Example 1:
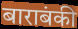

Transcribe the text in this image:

बाराबंकी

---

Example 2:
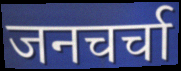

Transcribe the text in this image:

जनचर्चा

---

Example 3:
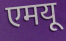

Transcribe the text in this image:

एमयू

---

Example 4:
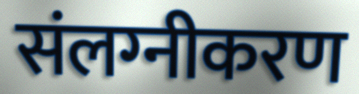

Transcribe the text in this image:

संलग्‍नीकरण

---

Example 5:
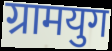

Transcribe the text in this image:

ग्रामयुग